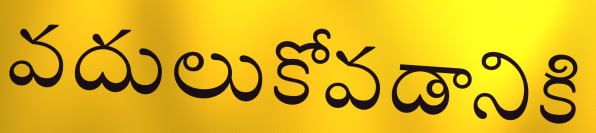
వదులుకోవడానికి